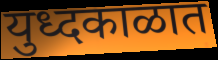
युध्दकाळात